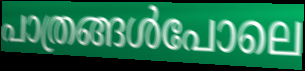
പാത്രങ്ങൾപോലെ